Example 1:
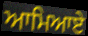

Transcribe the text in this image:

ਆਮਿਆਏ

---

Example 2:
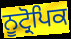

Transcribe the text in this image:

ਨੂਟ੍ਰੋਪਿਕ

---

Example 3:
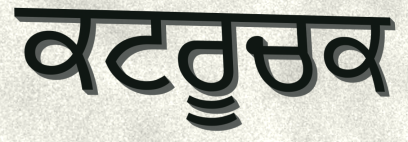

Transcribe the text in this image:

ਕਟਰੂਚਕ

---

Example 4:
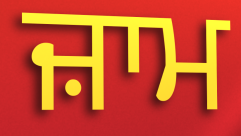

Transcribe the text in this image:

ਜ਼ਾਮ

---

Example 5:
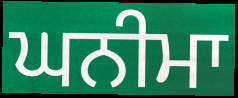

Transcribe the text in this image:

ਘਨੀਮਾ